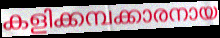
കളിക്കമ്പക്കാരനായ